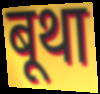
बूथा